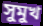
সুমুখ